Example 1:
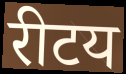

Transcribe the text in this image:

रीटय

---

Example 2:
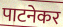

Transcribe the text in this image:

पाटनेकर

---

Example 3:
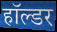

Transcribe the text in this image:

हॉल्डर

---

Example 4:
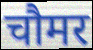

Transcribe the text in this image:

चौमर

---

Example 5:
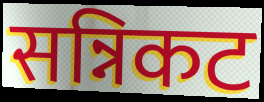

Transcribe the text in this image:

सन्निकट